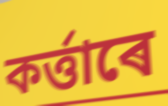
কৰ্ত্তাৰে